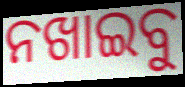
ନଖାଇବୁ